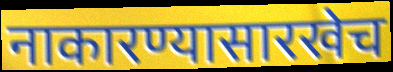
नाकारण्यासारखेच